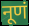
नूणं